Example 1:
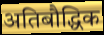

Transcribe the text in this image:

अतिबौद्धिक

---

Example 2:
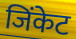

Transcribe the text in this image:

जिंकेट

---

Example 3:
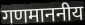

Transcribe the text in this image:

गणमाननीय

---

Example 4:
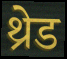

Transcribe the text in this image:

थ्रेड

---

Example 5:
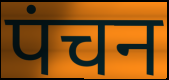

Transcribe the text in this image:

पंचन